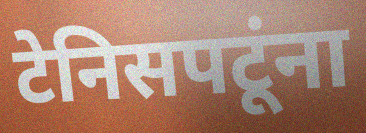
टेनिसपटूंना